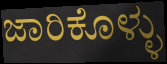
ಜಾರಿಕೊಳ್ಳು